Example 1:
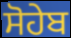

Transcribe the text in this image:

ਸੋਹੇਬ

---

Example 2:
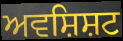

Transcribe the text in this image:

ਅਵਸ਼ਿਸ਼ਟ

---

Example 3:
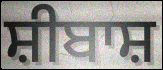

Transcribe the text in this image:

ਸ਼ੀਬਾਸ਼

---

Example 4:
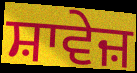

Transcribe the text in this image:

ਸ਼ਾਵੇਜ਼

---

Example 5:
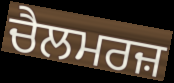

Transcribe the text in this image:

ਚੈਲਮਰਜ਼